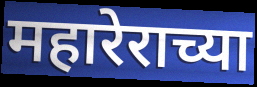
महारेराच्या